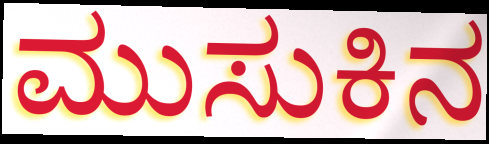
ಮುಸುಕಿನ